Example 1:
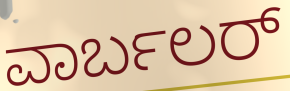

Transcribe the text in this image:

ವಾರ್ಬಲರ್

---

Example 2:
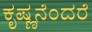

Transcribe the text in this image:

ಕೃಷ್ಣನೆಂದರೆ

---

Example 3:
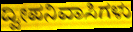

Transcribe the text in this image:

ದ್ವೀಪನಿವಾಸಿಗಳು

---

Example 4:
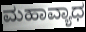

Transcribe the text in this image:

ಮಹಾವ್ಯಾಧ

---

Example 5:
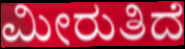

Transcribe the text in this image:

ಮೀರುತಿದೆ